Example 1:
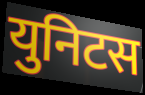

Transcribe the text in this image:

युनिटस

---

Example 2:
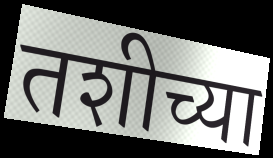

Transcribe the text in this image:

तशीच्या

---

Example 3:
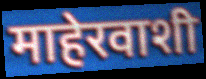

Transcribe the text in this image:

माहेरवाशी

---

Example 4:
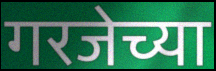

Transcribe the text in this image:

गरजेच्या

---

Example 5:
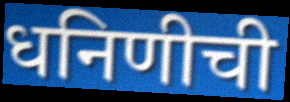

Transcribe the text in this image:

धनिणीची